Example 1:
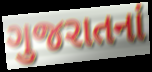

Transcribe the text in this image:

ગુજરાતનાં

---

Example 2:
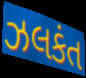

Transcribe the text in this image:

ઝલકંત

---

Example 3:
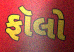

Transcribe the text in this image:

ફૉલો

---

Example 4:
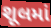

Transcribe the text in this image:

શૂલમાં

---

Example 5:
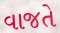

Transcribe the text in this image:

વાજતે